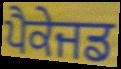
ਪੈਕੇਜਡ